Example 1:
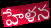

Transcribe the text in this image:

హేళన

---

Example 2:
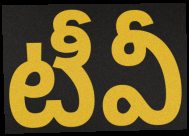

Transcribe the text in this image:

టీవీ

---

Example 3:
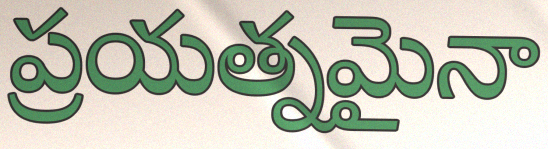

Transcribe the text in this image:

ప్రయత్నమైనా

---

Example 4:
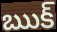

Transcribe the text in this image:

ఋక్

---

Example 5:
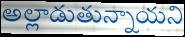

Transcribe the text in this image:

అల్లాడుతున్నాయని